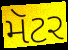
મૅટર